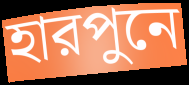
হারপুনে